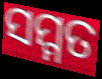
ସମ୍ମତ